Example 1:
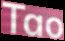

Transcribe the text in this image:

Tao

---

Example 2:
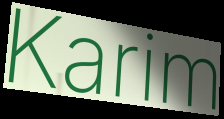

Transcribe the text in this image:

Karim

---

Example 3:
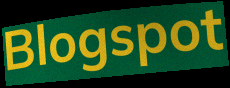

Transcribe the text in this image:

Blogspot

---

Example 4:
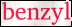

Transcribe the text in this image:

benzyl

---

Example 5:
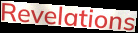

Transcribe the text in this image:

Revelations